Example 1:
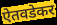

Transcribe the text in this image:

ऐतवडेकर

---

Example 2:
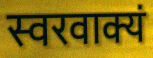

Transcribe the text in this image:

स्वरवाक्यं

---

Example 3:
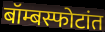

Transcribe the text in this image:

बॉम्बस्फोटांत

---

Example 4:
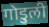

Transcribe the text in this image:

गोडुली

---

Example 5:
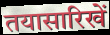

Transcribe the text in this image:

तयासारिखें